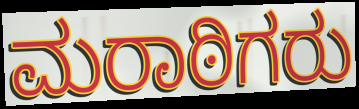
ಮರಾಠಿಗರು